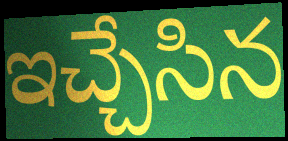
ఇచ్చేసిన